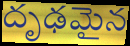
దృఢమైన